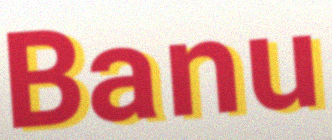
Banu